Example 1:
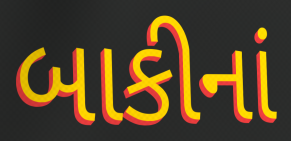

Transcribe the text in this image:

બાકીનાં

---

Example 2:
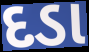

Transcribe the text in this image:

દડા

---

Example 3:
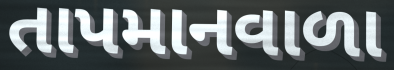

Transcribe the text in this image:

તાપમાનવાળા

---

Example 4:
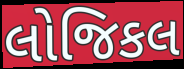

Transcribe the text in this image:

લોજિકલ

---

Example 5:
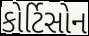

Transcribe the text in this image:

કોર્ટિસોન